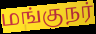
மங்குநர்